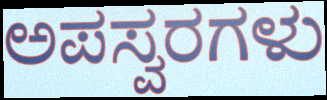
ಅಪಸ್ವರಗಳು